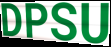
DPSU